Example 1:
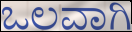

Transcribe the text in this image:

ಒಲವಾಗಿ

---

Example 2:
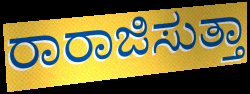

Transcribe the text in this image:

ರಾರಾಜಿಸುತ್ತಾ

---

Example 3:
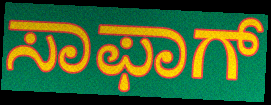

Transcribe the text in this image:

ಸಾಫಾಗ್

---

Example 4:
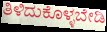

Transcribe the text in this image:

ತಿಳಿದುಕೊಳ್ಳಬೇಡಿ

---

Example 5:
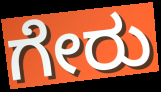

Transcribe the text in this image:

ಗೇರು